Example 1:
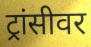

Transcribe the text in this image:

ट्रांसीवर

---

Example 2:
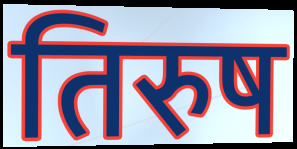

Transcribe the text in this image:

तिरुष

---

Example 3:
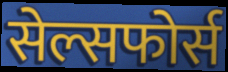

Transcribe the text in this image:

सेल्सफोर्स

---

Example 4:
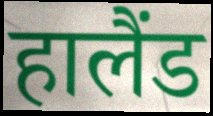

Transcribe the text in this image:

हालैंड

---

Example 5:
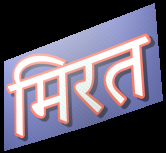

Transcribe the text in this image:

मिरत